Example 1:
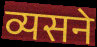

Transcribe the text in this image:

व्यसने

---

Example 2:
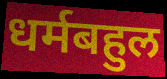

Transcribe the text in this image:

धर्मबहुल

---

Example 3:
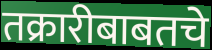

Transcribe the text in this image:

तक्रारीबाबतचे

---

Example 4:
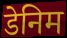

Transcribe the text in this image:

डेनिम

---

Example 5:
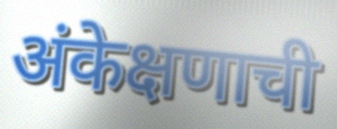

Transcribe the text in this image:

अंकेक्षणाची